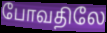
போவதிலே